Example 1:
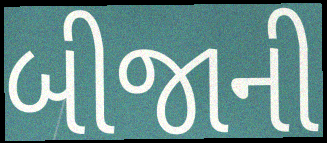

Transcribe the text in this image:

બીજાની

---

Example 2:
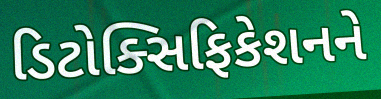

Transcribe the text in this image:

ડિટોક્સિફિકેશનને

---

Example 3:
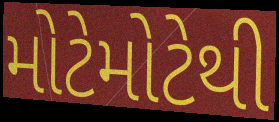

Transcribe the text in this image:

મોટેમોટેથી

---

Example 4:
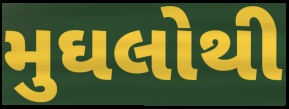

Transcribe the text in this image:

મુઘલોથી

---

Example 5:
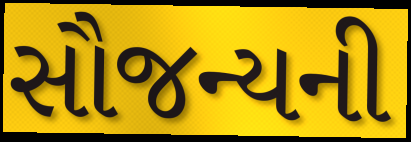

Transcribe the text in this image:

સૌજન્યની